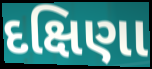
દક્ષિણા